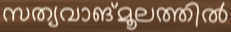
സത്യവാങ്മൂലത്തിൽ